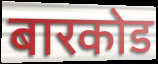
बारकोड